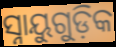
ସ୍ନାୟୁଗୁଡ଼ିକ